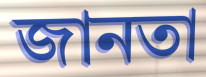
জানতা